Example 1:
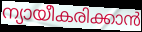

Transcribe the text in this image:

ന്യായീകരിക്കാൻ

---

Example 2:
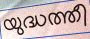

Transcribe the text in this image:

യുദ്ധത്തീ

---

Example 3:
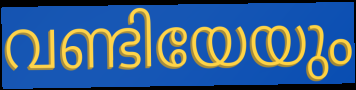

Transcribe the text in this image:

വണ്ടിയേയും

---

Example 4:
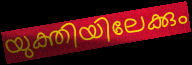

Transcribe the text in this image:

യുക്തിയിലേക്കും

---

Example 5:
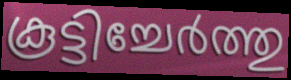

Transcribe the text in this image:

കൂട്ടിച്ചേർത്തു